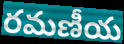
రమణీయ